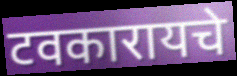
टवकारायचे